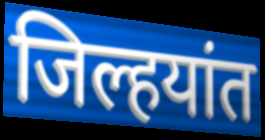
जिल्हयांत